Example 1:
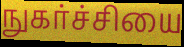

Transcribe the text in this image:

நுகர்ச்சியை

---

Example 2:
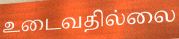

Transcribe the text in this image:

உடைவதில்லை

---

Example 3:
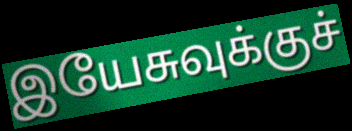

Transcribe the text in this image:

இயேசுவுக்குச்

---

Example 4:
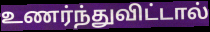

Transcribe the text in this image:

உணர்ந்துவிட்டால்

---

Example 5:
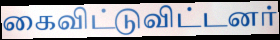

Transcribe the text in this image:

கைவிட்டுவிட்டனர்